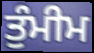
ਤੁੰਮੀਮ